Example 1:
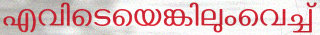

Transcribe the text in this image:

എവിടെയെങ്കിലുംവെച്ച്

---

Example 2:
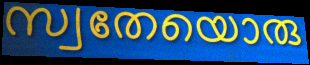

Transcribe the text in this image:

സ്വതേയൊരു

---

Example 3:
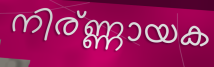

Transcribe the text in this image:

നിര്ണ്ണായക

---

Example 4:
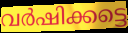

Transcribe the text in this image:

വർഷിക്കട്ടെ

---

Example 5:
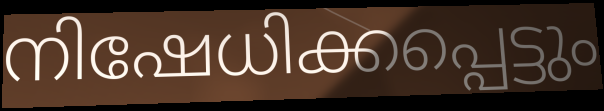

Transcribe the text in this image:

നിഷേധിക്കപ്പെട്ടും